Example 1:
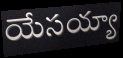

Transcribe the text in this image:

యేసయ్యా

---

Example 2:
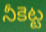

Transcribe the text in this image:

నీకెట్ట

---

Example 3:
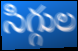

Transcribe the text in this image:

సిగ్గుల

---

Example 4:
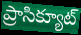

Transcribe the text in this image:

ప్రాసిక్యూట్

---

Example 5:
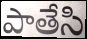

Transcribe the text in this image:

పాతేసి